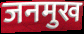
जनमुख